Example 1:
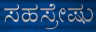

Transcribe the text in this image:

ಸಹಸ್ರೇಷು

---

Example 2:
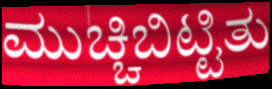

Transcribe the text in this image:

ಮುಚ್ಚಿಬಿಟ್ಟಿತು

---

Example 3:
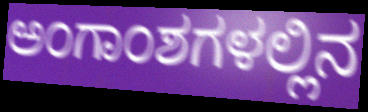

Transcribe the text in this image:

ಅಂಗಾಂಶಗಳಲ್ಲಿನ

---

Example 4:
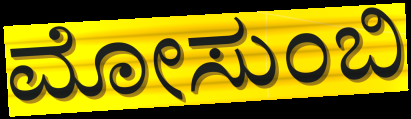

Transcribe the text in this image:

ಮೋಸುಂಬಿ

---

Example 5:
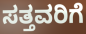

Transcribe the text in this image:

ಸತ್ತವರಿಗೆ